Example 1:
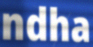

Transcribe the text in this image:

ndha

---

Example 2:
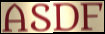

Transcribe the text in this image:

ASDF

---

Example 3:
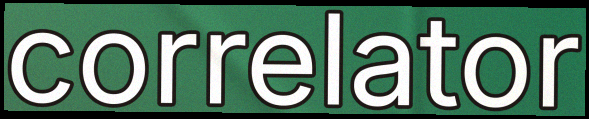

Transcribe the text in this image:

correlator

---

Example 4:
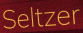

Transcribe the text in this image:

Seltzer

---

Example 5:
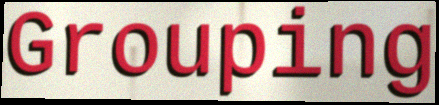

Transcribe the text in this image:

Grouping